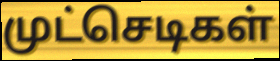
முட்செடிகள்